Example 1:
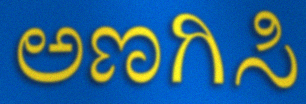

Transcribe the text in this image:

ಅಣಗಿಸಿ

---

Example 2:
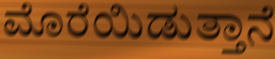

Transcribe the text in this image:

ಮೊರೆಯಿಡುತ್ತಾನೆ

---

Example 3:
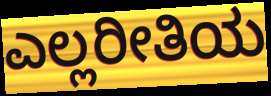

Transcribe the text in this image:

ಎಲ್ಲರೀತಿಯ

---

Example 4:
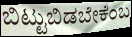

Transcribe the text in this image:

ಬಿಟ್ಟುಬಿಡಬೇಕೆಂಬ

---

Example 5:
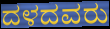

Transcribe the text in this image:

ದಳದವರು